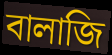
বালাজি